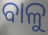
ବାଳୁ